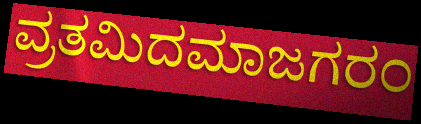
ವ್ರತಮಿದಮಾಜಗರಂ